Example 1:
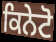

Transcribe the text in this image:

ਕਿਨੇਟੋ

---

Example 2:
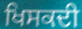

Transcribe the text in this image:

ਖਿਸਕਦੀ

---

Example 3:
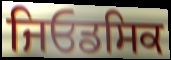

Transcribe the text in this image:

ਜਿਓਡਸਿਕ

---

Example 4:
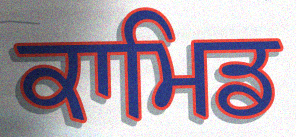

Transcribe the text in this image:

ਕਾਮਿਡ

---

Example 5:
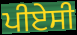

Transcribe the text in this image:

ਪੀਏਸੀ